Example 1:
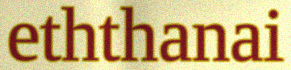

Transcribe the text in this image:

eththanai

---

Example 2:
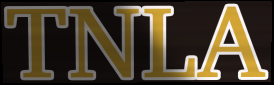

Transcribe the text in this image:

TNLA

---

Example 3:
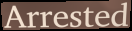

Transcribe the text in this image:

Arrested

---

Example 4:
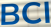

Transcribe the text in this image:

BCI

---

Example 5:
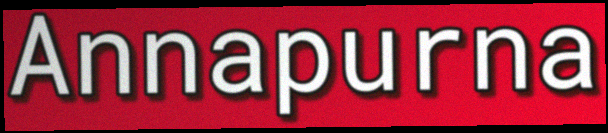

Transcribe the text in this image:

Annapurna